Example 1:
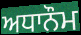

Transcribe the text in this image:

ਅਧਾਨੌਮ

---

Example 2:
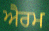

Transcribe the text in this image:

ਐਰਮ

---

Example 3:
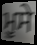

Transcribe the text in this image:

ਮੂਸੇ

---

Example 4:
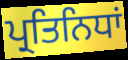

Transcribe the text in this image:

ਪ੍ਰਤਿਨਿਧਾਂ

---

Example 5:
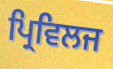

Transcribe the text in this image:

ਪ੍ਰਿਵਿਲਜ